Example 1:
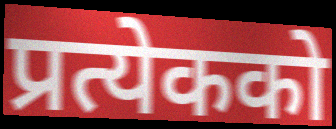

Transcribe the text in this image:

प्रत्येकको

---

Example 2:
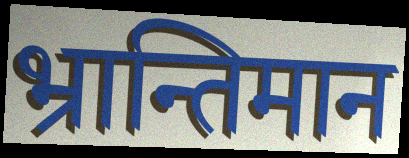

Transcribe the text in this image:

भ्रान्तिमान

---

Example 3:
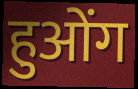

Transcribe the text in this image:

हुओंग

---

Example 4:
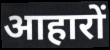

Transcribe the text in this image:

आहारों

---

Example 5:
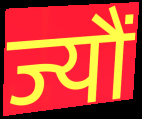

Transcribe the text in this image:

ज्यौं